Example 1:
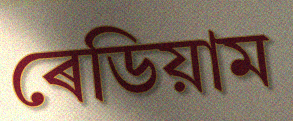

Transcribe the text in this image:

ৰেডিয়াম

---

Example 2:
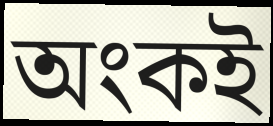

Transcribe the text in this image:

অংকই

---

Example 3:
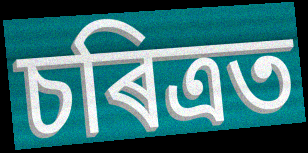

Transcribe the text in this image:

চৰিত্ৰত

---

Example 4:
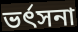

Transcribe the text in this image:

ভৰ্ৎসনা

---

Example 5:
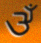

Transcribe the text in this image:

ঔঁ